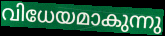
വിധേയമാകുന്നു